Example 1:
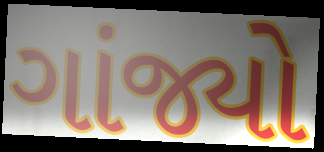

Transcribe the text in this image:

ગાંજ્યો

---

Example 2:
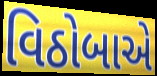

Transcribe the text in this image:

વિઠોબાએ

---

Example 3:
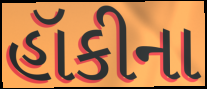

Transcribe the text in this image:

હૉકીના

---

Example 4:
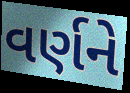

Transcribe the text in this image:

વર્ણને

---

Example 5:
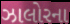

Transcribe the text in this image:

ઝાલોરના